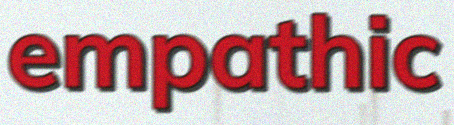
empathic